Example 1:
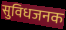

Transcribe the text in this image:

सुविधजनक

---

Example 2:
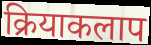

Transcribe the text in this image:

क्रियाकलाप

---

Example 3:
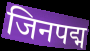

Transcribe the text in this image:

जिनपद्म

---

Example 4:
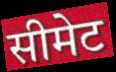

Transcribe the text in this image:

सीमेट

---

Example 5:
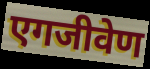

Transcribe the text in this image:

एगजीवेण